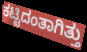
ಕಟ್ಟಿದಂತಾಗಿತ್ತು